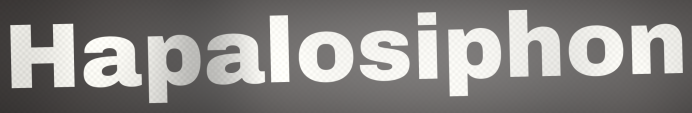
Hapalosiphon